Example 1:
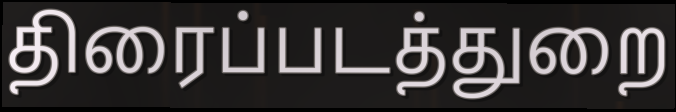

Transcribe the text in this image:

திரைப்படத்துறை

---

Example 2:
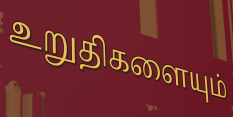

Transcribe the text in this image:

உறுதிகளையும்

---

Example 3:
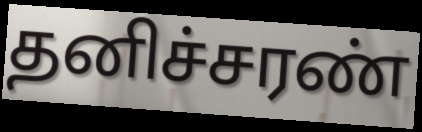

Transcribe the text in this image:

தனிச்சரண்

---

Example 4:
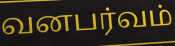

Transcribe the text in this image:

வனபர்வம்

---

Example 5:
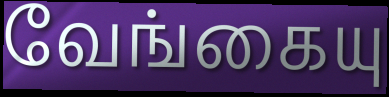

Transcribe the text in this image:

வேங்கையு